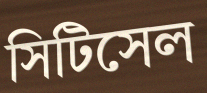
সিটিসেল